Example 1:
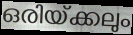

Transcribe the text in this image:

ഒരിയ്‌ക്കലും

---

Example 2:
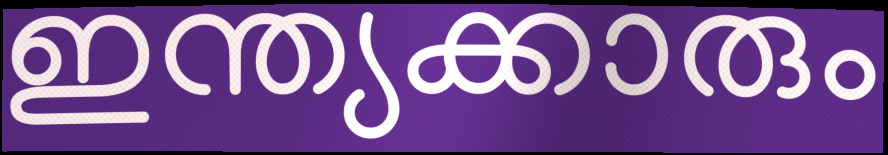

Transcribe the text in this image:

ഇന്ത്യക്കാരും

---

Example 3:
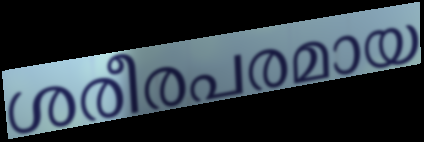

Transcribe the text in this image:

ശരീരപരമായ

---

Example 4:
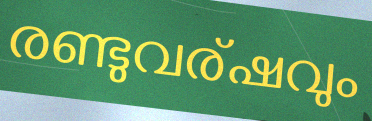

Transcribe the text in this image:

രണ്ടുവര്ഷവും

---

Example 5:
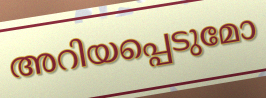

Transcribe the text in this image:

അറിയപ്പെടുമോ